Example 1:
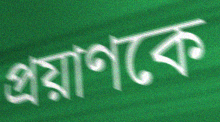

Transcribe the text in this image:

প্রয়াণকে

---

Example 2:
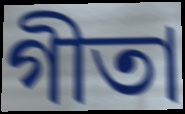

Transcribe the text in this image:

গীতা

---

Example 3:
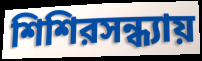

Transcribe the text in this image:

শিশিরসন্ধ্যায়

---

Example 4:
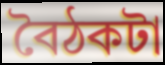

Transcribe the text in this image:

বৈঠকটা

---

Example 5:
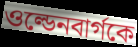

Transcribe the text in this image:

ওল্ডেনবার্গকে